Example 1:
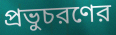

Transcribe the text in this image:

প্রভুচরণের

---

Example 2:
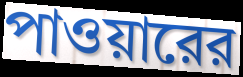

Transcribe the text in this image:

পাওয়ারের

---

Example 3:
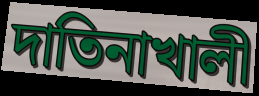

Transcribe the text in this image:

দাতিনাখালী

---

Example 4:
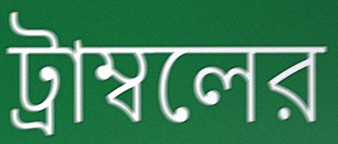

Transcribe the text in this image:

ট্রাম্বলের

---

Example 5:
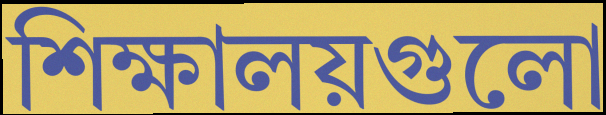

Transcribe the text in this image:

শিক্ষালয়গুলো